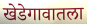
खेडेगावातला